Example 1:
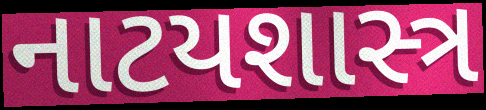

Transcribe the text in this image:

નાટયશાસ્ત્ર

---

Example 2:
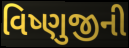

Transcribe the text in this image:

વિષ્ણુજીની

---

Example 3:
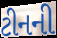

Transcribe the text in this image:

ટીનની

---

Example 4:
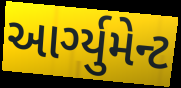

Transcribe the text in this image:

આર્ગ્યુમેન્ટ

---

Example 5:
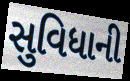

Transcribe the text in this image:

સુવિધાની